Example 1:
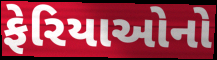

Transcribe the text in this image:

ફેરિયાઓનો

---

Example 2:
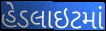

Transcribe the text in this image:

હેડલાઇટમાં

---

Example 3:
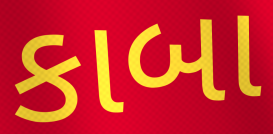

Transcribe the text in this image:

કાબા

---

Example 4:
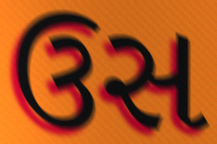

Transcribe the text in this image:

ઉસ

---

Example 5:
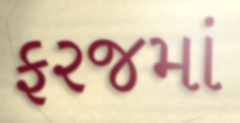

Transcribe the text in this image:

ફરજમાં